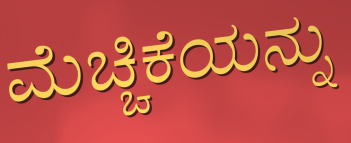
ಮೆಚ್ಚಿಕೆಯನ್ನು